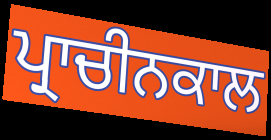
ਪ੍ਰਾਚੀਨਕਾਲ